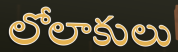
లోలాకులు